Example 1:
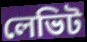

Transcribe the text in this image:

লেভিট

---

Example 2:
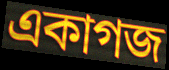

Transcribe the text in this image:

একাগজ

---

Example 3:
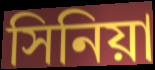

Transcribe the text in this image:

সিনিয়া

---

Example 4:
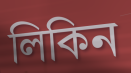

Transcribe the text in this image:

লিকিন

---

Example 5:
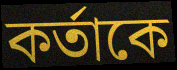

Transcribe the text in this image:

কর্তাকে